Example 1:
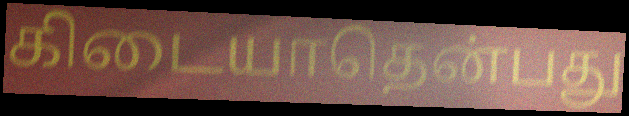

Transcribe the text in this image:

கிடையாதென்பது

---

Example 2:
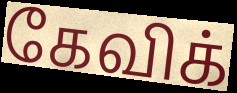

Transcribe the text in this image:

கேவிக்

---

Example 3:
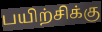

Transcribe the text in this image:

பயிற்சிக்கு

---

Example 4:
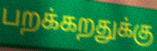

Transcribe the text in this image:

பறக்கறதுக்கு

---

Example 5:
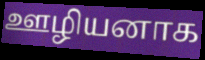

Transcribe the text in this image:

ஊழியனாக